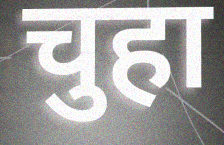
चुहा